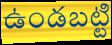
ఉండబట్టి